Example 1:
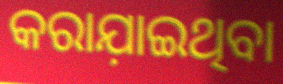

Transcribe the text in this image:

କରାଯ଼ାଇଥିବା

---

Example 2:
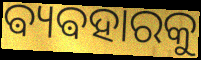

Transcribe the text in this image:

ଵ୍ୟଵହାରକୁ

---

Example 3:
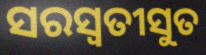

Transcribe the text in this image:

ସରସ୍ୱତୀସୁତ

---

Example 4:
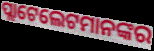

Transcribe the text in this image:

ପ୍ଲାଟେଲେଟମାନଙ୍କର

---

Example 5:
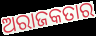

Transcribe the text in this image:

ଅରାଜକତାର